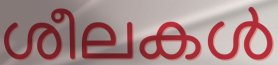
ശീലകൾ